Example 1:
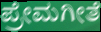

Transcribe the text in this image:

ಪ್ರೇಮಗೀತೆ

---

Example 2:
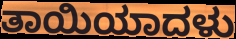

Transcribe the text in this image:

ತಾಯಿಯಾದಳು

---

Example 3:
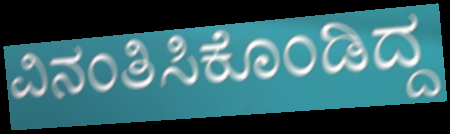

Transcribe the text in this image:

ವಿನಂತಿಸಿಕೊಂಡಿದ್ದ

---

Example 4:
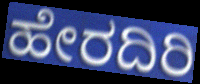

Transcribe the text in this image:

ಹೇರದಿರಿ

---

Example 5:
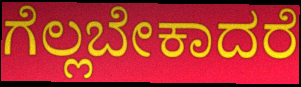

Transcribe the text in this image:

ಗೆಲ್ಲಬೇಕಾದರೆ